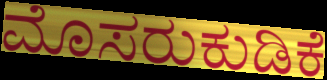
ಮೊಸರುಕುಡಿಕೆ